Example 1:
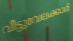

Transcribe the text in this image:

വീട്ടുവേലക്കാർ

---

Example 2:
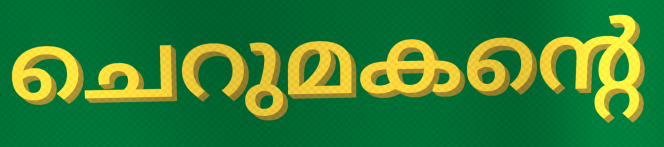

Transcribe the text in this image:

ചെറുമകന്റെ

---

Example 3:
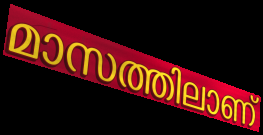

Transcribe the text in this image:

മാസത്തിലാണ്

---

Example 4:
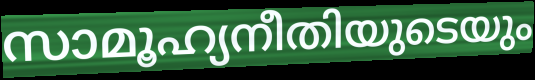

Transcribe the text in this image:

സാമൂഹ്യനീതിയുടെയും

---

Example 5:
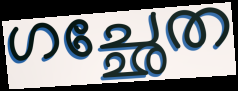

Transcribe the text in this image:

ഗച്ഛേത